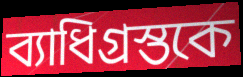
ব্যাধিগ্রস্তকে